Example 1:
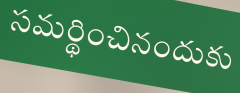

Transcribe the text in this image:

సమర్థించినందుకు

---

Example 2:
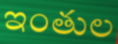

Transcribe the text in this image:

ఇంతుల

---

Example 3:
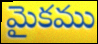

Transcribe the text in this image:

మైకము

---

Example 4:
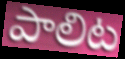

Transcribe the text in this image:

పాలిట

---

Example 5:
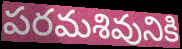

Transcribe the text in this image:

పరమశివునికి